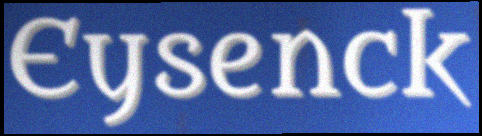
Eysenck